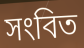
সংবিত